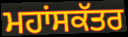
ਮਹਾਂਸਕੱਤਰ